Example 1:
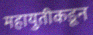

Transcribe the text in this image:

महायुतीकडून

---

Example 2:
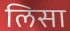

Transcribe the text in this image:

लिसा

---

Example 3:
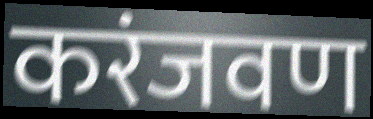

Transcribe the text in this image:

करंजवण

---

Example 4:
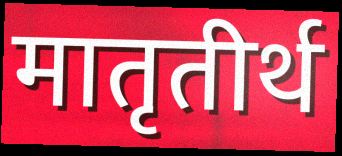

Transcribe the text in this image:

मातृतीर्थ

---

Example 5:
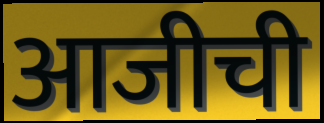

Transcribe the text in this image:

आजीची